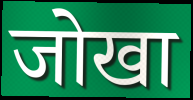
जोखा